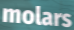
molars